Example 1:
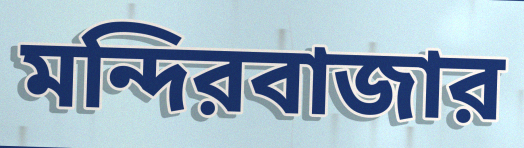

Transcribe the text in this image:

মন্দিরবাজার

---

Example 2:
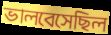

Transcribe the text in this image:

ভালবেসেছিল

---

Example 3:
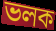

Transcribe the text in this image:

ভলক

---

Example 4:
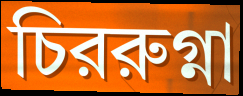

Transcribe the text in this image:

চিররুগ্না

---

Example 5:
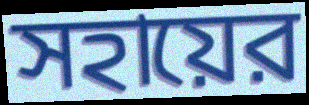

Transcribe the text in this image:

সহায়ের